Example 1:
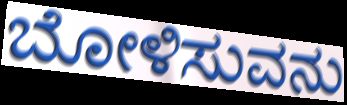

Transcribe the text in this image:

ಬೋಳಿಸುವನು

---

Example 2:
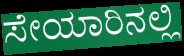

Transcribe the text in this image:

ಸೇಯಾರಿನಲ್ಲಿ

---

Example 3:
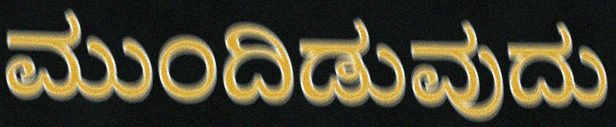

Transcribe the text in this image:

ಮುಂದಿಡುವುದು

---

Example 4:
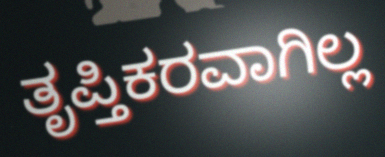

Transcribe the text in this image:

ತೃಪ್ತಿಕರವಾಗಿಲ್ಲ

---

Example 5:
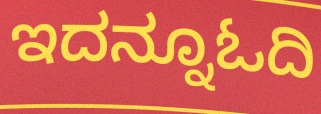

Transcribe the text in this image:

ಇದನ್ನೂಓದಿ